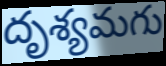
దృశ్యమగు